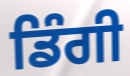
ਡਿੰਗੀ